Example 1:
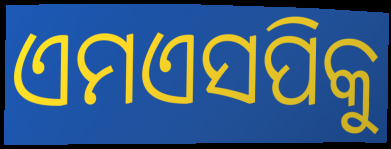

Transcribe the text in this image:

ଏମଏସପିକୁ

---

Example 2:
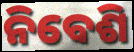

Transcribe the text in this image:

ନିବେଶି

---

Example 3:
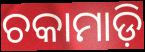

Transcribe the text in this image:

ଚକାମାଡ଼ି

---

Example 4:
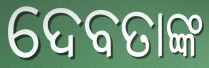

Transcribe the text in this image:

ଦେବତାଙ୍କ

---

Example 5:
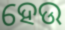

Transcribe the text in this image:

ହେଉ